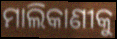
ମାଲିକାଣୀକୁ